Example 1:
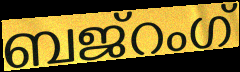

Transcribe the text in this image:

ബജ്റംഗ്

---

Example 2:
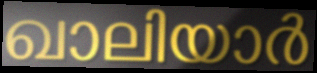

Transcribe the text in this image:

ഖാലിയാർ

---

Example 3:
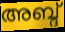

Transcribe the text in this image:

അബ്ദ്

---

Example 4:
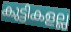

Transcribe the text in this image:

കുട്ടികളല്ല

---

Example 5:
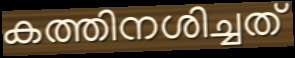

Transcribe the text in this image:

കത്തിനശിച്ചത്